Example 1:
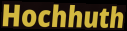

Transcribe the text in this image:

Hochhuth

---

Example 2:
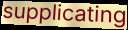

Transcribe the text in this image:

supplicating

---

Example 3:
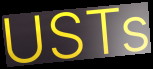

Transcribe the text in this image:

USTs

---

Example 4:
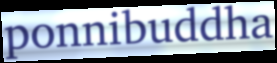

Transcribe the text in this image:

ponnibuddha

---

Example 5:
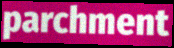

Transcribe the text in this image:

parchment